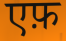
एफ़